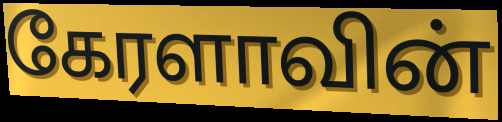
கேரளாவின்